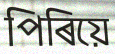
পিৰিয়ে